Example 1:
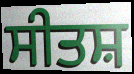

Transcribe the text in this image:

ਸੀਤਸ਼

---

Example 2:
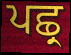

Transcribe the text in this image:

ਪਛ੍ਰ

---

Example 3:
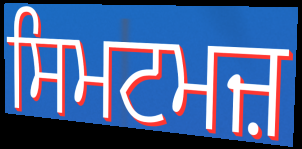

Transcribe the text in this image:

ਸਿਮਟਮਜ਼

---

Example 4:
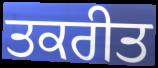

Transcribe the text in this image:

ਤਕਰੀਤ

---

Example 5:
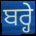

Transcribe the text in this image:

ਬਰ੍ਹੇ